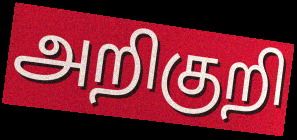
அறிகுறி